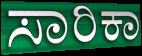
ಸಾರಿಕಾ